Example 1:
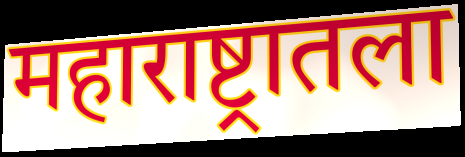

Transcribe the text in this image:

महाराष्ट्रातला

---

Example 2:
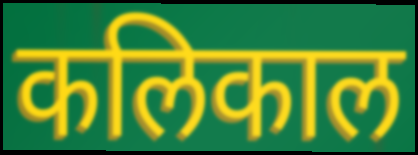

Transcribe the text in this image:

कलिकाल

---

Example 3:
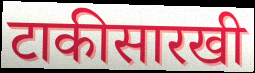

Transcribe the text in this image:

टाकीसारखी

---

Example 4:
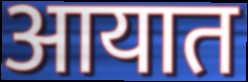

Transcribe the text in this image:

आयात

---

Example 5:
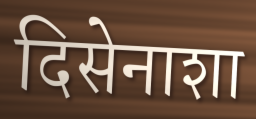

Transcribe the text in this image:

दिसेनाशा